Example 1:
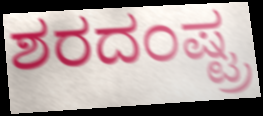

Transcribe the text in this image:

ಶರದಂಷ್ಟ್ರ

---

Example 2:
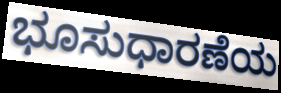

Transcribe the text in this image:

ಭೂಸುಧಾರಣೆಯ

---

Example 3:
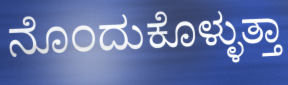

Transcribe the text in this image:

ನೊಂದುಕೊಳ್ಳುತ್ತಾ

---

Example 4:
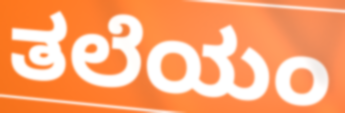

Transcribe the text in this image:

ತಲೆಯಂ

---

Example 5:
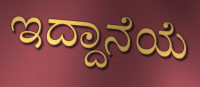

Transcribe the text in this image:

ಇದ್ದಾನೆಯೆ